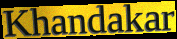
Khandakar